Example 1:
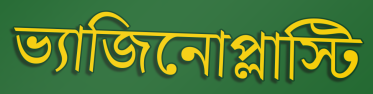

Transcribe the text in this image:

ভ্যাজিনোপ্লাস্টি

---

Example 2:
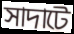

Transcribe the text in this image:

সাদাটে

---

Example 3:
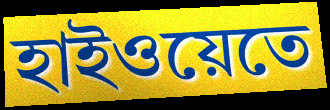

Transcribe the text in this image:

হাইওয়েতে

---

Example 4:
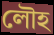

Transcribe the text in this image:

লৌহ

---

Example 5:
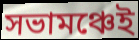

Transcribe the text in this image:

সভামঞ্চেই